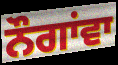
ਨੌਗਾਂਵਾ